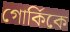
গোর্কিকে